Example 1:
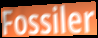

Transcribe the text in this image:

Fossiler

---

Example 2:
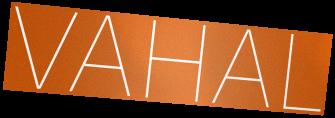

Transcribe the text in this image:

VAHAL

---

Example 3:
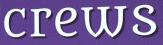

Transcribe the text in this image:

crews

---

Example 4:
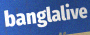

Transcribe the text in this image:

banglalive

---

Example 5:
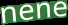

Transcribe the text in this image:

nene